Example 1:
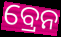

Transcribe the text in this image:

ବ୍ରେନ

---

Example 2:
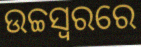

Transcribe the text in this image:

ଉଚ୍ଚସ୍ୱରରେ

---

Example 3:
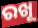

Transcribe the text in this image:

ରଖୂ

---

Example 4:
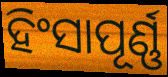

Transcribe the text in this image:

ହିଂସାପୂର୍ଣ୍ଣ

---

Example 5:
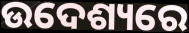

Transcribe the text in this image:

ଉଦେଶ୍ୟରେ